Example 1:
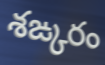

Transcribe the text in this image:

శఙ్కరం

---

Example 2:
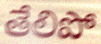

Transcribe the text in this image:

తేలిపో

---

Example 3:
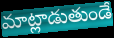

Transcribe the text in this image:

మాట్లాడుతుండే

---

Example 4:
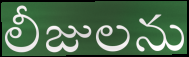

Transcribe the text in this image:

లీజులను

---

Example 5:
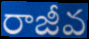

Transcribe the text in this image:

రాజీవ